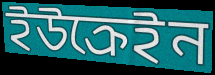
ইউক্রেইন